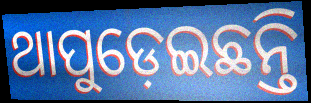
ଥାପୁଡ଼େଇଛନ୍ତି